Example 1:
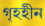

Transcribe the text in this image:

গৃহহীন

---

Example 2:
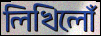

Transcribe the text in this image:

লিখিলোঁ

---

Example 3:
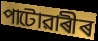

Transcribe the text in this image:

পাটোৱাৰীৰ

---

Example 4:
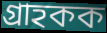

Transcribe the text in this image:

গ্ৰাহকক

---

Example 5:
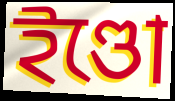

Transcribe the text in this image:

ইণ্ডো